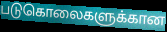
படுகொலைகளுக்கான